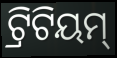
ଟ୍ରିଟିୟମ୍